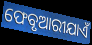
ଫେବୃଆରୀଯାଏଁ